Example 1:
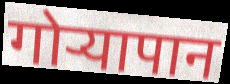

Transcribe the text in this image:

गोऱ्यापान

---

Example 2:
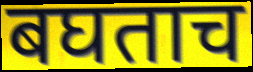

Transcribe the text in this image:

बघताच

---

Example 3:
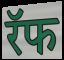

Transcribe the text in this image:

रॅफ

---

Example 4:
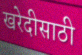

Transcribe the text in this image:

खरेदीसाठी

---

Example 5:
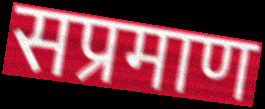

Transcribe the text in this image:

सप्रमाण